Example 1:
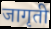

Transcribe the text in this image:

जागृती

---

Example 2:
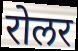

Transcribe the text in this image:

रोलर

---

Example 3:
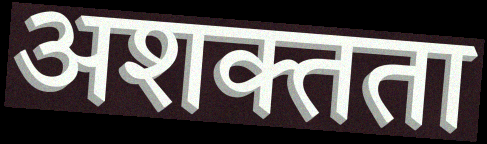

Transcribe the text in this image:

अशक्‍तता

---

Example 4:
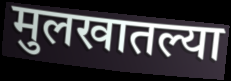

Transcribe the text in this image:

मुलखातल्या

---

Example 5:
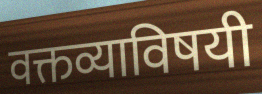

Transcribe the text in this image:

वक्तव्याविषयी